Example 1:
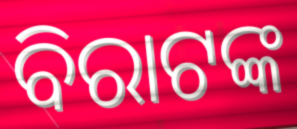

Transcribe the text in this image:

ବିରାଟଙ୍କ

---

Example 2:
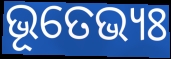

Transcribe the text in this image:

ଭୂତେଭ୍ୟଃ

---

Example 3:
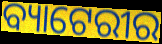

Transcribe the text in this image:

ବ୍ୟାଟେରୀର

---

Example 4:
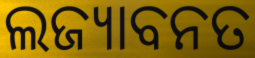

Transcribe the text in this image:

ଲଜ୍ୟାବନତ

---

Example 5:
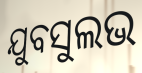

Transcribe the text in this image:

ଯୁବସୁଲଭ